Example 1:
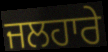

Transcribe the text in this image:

ਜਲਹਾਰੇ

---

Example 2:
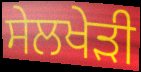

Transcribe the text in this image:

ਸੇਲਖੇੜੀ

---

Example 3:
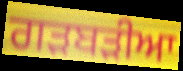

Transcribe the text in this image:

ਗੜਬੜੀਆ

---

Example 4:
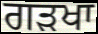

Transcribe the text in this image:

ਗੜਖਾ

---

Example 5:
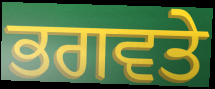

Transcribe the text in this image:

ਭਗਵਤੇ